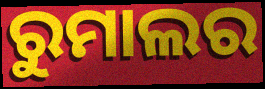
ରୁମାଲର